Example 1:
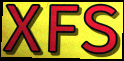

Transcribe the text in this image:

XFS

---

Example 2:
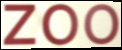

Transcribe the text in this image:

zoo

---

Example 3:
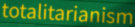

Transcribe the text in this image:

totalitarianism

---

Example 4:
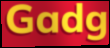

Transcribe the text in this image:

Gadg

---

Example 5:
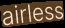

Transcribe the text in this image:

airless